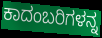
ಕಾದಂಬರಿಗಳನ್ನ